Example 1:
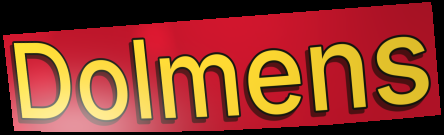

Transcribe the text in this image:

Dolmens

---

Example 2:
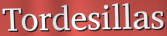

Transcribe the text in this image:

Tordesillas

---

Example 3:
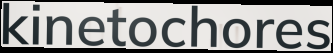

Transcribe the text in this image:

kinetochores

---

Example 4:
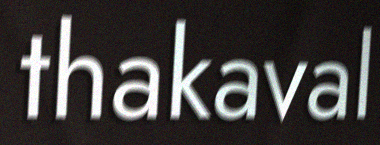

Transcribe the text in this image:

thakaval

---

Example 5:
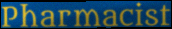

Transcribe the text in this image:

Pharmacist